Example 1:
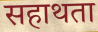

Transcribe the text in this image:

सहाथता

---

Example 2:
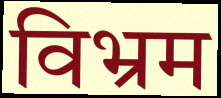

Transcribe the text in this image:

विभ्रम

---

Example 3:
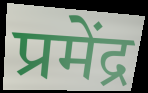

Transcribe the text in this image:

प्रमेंद्र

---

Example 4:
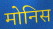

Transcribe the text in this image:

मोनिस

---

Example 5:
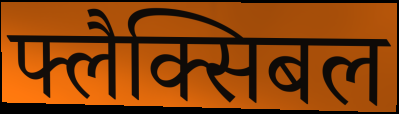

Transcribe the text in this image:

फ्लैक्सिबल